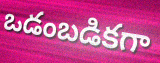
ఒడంబడికగా